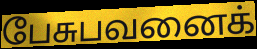
பேசுபவனைக்